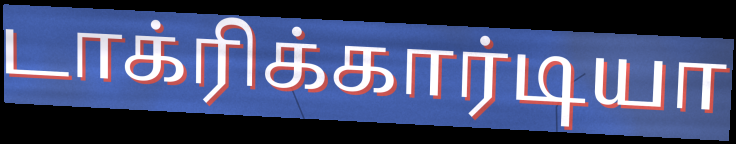
டாக்ரிக்கார்டியா